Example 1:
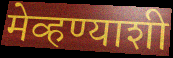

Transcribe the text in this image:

मेव्हण्याशी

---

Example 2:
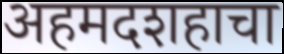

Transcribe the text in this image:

अहमदशहाचा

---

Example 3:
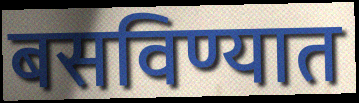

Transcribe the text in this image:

बसविण्यात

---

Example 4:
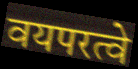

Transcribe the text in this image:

वयपरत्वे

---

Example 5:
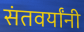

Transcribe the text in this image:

संतवर्यांनी